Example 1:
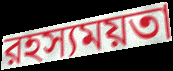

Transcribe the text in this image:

রহস্যময়তা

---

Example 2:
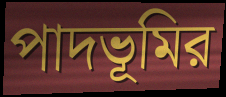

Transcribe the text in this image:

পাদভূমির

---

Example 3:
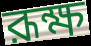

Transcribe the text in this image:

রূক্ষ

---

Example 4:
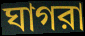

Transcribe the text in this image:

ঘাগরা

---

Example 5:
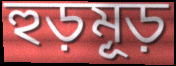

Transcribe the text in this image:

হুড়মূড়